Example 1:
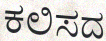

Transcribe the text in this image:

ಕಲಿಸದ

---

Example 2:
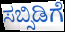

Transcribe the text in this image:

ಸಬ್ಸಿಡಿಗೆ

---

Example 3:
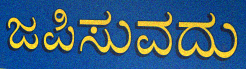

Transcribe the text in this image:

ಜಪಿಸುವದು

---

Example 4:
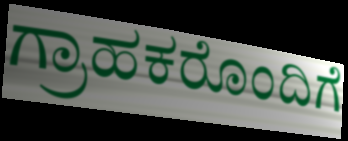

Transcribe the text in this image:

ಗ್ರಾಹಕರೊಂದಿಗೆ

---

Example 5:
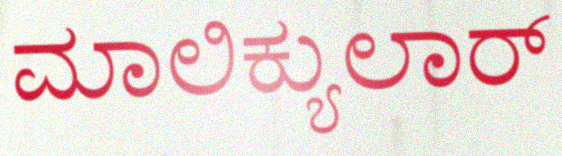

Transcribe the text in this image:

ಮಾಲಿಕ್ಯುಲಾರ್